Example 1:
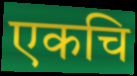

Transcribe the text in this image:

एकचि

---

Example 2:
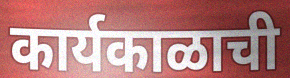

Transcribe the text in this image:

कार्यकाळाची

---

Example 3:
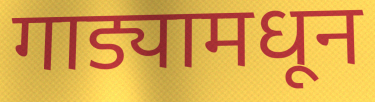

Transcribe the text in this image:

गाड्यामधून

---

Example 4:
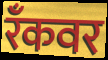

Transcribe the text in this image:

रँकवर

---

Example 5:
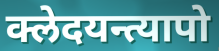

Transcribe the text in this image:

क्लेदयन्त्यापो